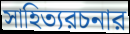
সাহিত্যরচনার